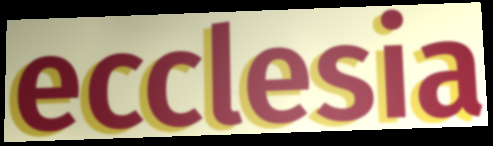
ecclesia